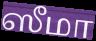
ஸீமா